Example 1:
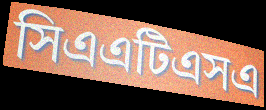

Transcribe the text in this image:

সিএএটিএসএ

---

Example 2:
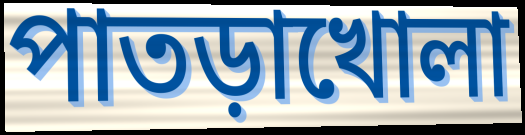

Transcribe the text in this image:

পাতড়াখোলা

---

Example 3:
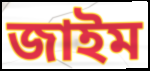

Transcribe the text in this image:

জাইম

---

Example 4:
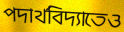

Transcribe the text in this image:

পদার্থবিদ্যাতেও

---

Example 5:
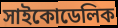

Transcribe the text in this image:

সাইকোডেলিক